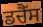
ਡਚੈੱਸ